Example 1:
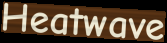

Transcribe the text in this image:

Heatwave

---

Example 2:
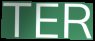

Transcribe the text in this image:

TER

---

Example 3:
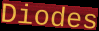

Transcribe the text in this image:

Diodes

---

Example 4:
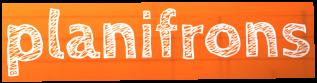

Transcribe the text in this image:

planifrons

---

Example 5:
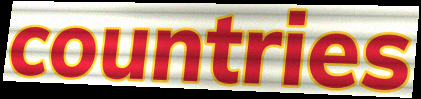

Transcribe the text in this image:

countries